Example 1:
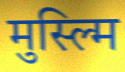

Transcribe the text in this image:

मुस्ल्मि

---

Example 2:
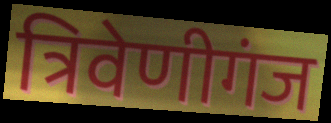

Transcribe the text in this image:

त्रिवेणीगंज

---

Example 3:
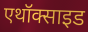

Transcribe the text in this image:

एथॉक्साइड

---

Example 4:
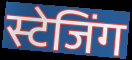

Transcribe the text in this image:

स्टेजिंग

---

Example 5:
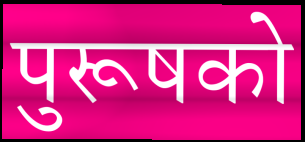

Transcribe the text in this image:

पुरूषको